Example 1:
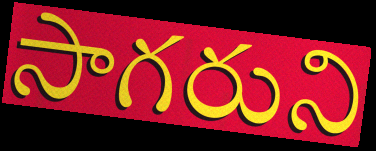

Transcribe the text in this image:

సాగరుని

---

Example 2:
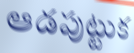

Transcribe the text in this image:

ఆడపుట్టుక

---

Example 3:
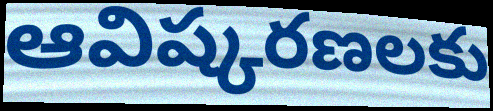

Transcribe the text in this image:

ఆవిష్కరణలకు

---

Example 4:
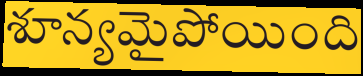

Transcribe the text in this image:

శూన్యమైపోయింది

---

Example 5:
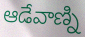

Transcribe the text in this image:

ఆడేవాణ్ని